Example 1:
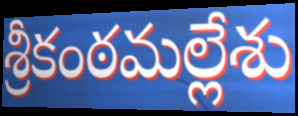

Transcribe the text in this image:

శ్రీకంఠమల్లేశు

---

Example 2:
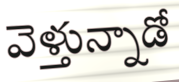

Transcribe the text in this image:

వెళ్తున్నాడో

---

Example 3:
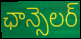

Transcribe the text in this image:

ఛాన్సెలర్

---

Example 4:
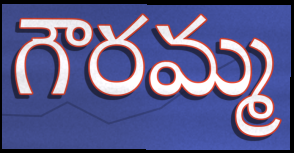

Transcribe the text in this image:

గౌరమ్మ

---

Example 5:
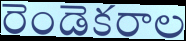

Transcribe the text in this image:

రెండెకరాల